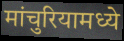
मांचुरियामध्ये